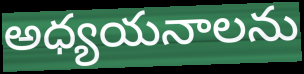
అధ్యయనాలను